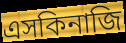
এসকিনাজি